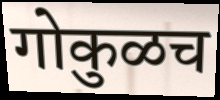
गोकुळच